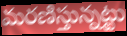
మరణిస్తున్నట్టు